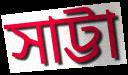
সাট্টা